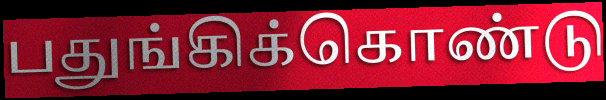
பதுங்கிக்கொண்டு